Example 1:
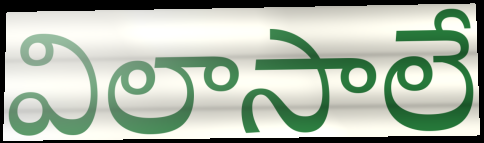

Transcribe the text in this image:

విలాసాలే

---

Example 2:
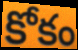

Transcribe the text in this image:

కోకం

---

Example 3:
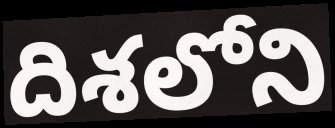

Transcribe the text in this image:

దిశలోని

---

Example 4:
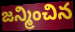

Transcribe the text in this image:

జన్మించిన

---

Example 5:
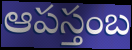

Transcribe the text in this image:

ఆపస్తంబ